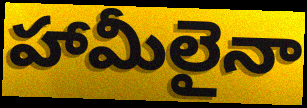
హామీలైనా